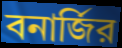
বনার্জির